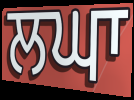
ਲਘਾ